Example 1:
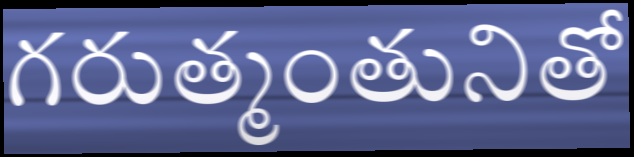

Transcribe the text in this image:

గరుత్మంతునితో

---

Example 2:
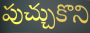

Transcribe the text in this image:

పుచ్చుకొని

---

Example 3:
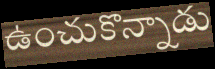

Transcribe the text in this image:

ఉంచుకొన్నాడు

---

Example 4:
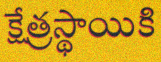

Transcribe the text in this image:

క్షేత్రస్థాయికి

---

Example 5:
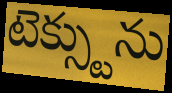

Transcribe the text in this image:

టెక్స్టును